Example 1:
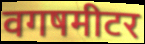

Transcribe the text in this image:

वगषमीटर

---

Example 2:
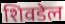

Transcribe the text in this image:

शिवडेल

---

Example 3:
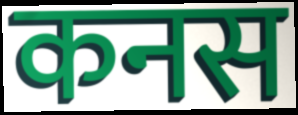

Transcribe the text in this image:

कनस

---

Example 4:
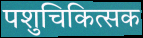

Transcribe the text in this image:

पशुचिकित्सक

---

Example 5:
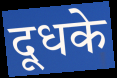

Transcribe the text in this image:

दूधके